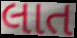
લાત